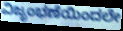
ವಿಜೃಂಭಣೆಯಿಂದಲೇ